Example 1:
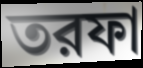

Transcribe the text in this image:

তরফা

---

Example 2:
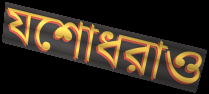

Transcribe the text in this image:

যশোধরাও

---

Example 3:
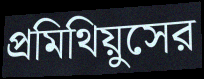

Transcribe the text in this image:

প্রমিথিয়ুসের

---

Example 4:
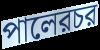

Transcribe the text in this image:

পালেরচর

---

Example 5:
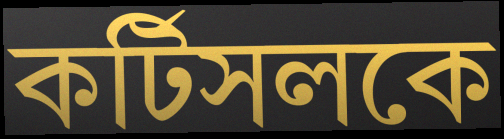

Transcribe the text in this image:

কর্টিসলকে